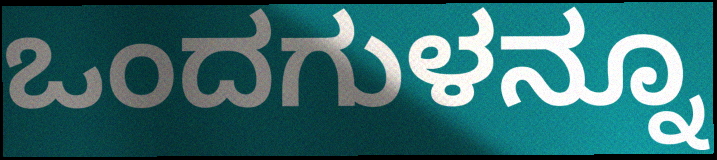
ಒಂದಗುಳನ್ನೂ